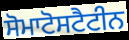
ਸੋਮਾਟੋਸਟੈਟੀਨ